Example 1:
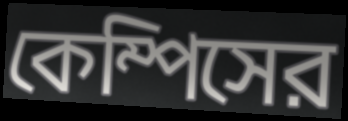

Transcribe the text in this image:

কেম্পিসের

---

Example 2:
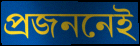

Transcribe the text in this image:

প্রজননেই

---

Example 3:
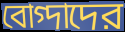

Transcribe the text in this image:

বোগ্দাদের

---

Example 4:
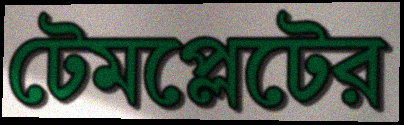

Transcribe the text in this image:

টেমপ্লেটের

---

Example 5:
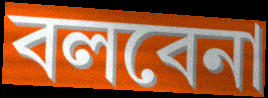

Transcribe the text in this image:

বলবেনা